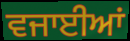
ਵਜਾਈਆਂ